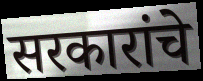
सरकारांचे